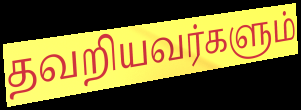
தவறியவர்களும்